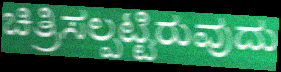
ಚಿತ್ರಿಸಲ್ಪಟ್ಟಿರುವುದು